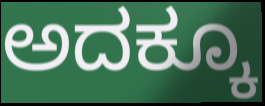
ಅದಕ್ಕೂ